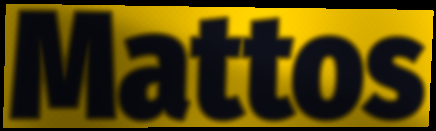
Mattos